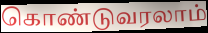
கொண்டுவரலாம்